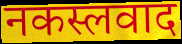
नकस्लवाद